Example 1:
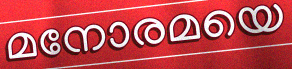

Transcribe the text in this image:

മനോരമയെ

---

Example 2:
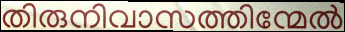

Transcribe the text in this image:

തിരുനിവാസത്തിന്മേൽ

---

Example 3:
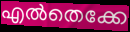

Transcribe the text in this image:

എൽതെക്കേ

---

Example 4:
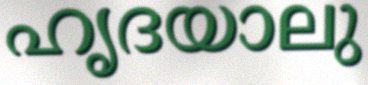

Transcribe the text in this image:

ഹൃദയാലു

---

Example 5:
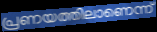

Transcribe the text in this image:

പ്രണയത്തിലാണെന്ന്